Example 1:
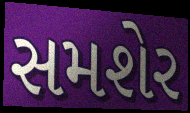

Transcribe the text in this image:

સમશેર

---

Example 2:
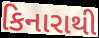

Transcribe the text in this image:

કિનારાથી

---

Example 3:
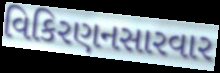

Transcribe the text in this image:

વિકિરણનસારવાર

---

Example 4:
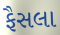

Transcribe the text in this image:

ફૈસલા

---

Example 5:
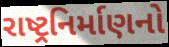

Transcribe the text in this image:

રાષ્ટ્રનિર્માણનો